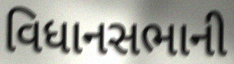
વિધાનસભાની